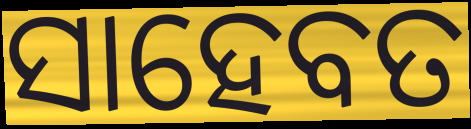
ସାହେବତ